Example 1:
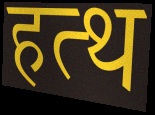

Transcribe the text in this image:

हत्थ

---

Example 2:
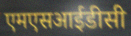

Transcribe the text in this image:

एमएसआईडीसी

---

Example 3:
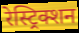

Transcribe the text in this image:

रेस्ट्रिक्शन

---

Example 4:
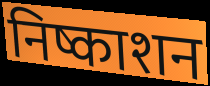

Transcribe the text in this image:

निष्काशन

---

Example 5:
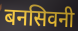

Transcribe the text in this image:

बनसिवनी